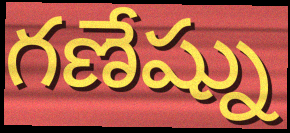
గణేష్ను